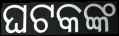
ଘଟକଙ୍କ